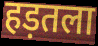
हड़तला